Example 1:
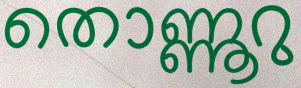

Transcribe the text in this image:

തൊണ്ണൂറു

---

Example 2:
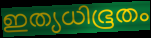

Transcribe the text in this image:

ഇത്യധിഭൂതം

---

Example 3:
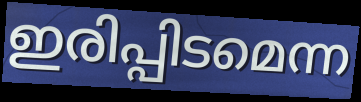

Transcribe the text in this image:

ഇരിപ്പിടമെന്ന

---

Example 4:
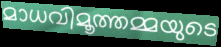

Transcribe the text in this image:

മാധവിമൂത്തമ്മയുടെ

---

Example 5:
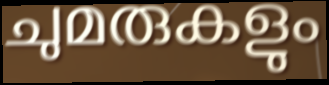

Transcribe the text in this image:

ചുമരുകളും